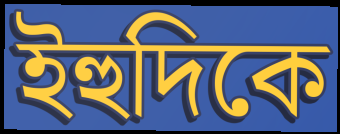
ইহুদিকে